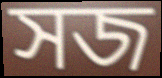
সজ